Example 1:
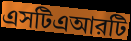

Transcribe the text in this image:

এসটিএআরটি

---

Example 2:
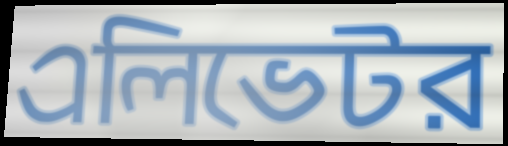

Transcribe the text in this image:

এলিভেটর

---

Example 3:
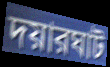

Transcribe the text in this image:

দয়ারঘাট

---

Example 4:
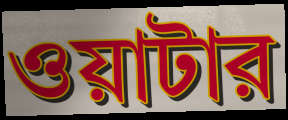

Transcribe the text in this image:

ওয়াটার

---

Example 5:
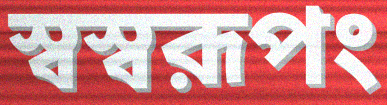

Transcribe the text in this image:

স্বস্বরূপং